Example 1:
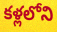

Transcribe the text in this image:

కళ్లలోని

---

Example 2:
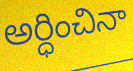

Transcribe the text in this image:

అర్ధించినా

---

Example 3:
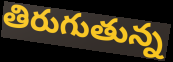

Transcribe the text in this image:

తిరుగుతున్న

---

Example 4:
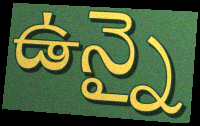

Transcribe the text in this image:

ఉన్నై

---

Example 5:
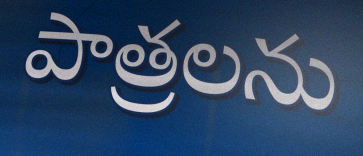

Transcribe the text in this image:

పాత్రలను